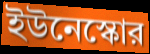
ইউনেস্কোর